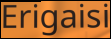
Erigaisi